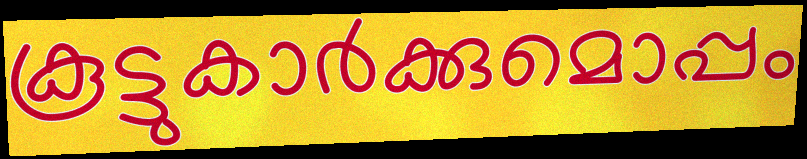
കൂട്ടുകാർക്കുമൊപ്പം